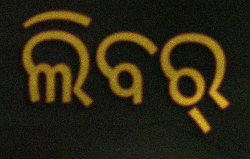
ଲିବର୍